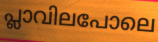
പ്ലാവിലപോലെ